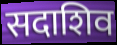
सदाशिव